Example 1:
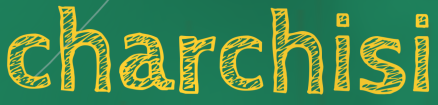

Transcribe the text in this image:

charchisi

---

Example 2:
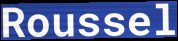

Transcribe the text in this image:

Roussel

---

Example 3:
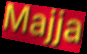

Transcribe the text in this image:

Majja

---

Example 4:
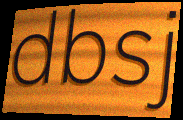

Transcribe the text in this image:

dbsj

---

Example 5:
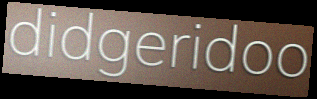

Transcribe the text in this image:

didgeridoo